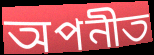
অপনীত